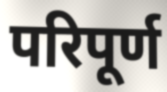
परिपूर्ण